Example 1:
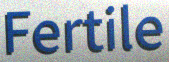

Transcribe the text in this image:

Fertile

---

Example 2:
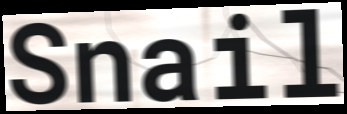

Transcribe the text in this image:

Snail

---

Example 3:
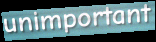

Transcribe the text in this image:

unimportant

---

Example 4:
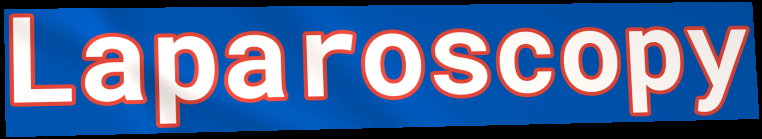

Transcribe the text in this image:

Laparoscopy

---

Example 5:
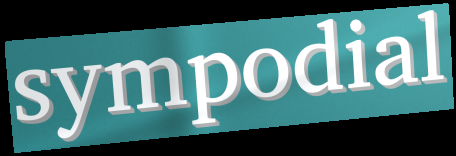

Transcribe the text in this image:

sympodial